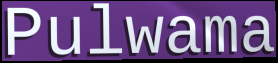
Pulwama